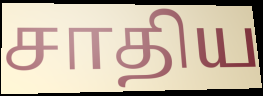
சாதிய